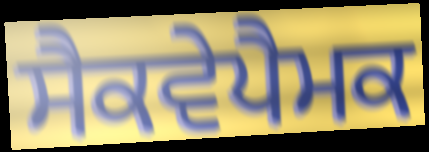
ਸੈਕਵੇਪੈਮਕ